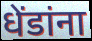
धेंडांना